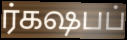
ர்கஷபப்